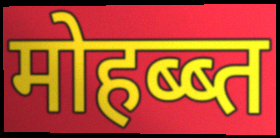
मोहब्ब्त